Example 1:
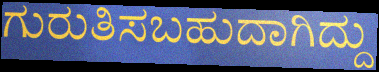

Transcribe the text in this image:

ಗುರುತಿಸಬಹುದಾಗಿದ್ದು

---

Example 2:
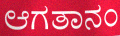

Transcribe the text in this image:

ಆಗತಾನಂ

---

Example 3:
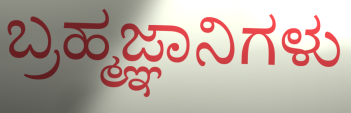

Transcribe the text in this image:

ಬ್ರಹ್ಮಜ್ಞಾನಿಗಳು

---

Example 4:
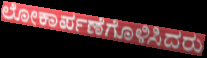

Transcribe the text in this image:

ಲೋಕಾರ್ಪಣೆಗೊಳಿಸಿದರು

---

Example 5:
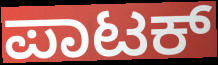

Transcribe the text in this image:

ಪಾಟಕ್